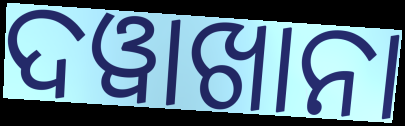
ଦୱାଖାନା